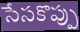
సేసకొప్పు